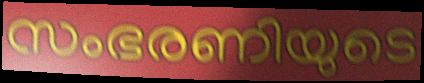
സംഭരണിയുടെ